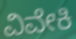
ವಿವೇಕಿ